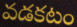
వడకటం